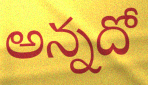
అన్నదో